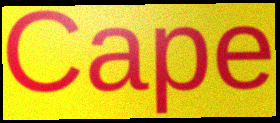
Cape